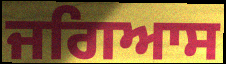
ਜਗਿਆਸ